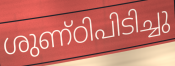
ശുണ്ഠിപിടിച്ചു